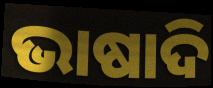
ଭାଷାଦି